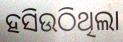
ହସିଉଠିଥିଲା